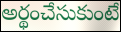
అర్థంచేసుకుంటే